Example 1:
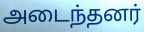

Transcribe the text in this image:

அடைந்தனர்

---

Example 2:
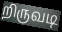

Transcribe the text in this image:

றிருவடி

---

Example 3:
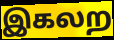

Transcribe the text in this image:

இகலற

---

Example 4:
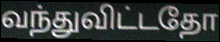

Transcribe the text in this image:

வந்துவிட்டதோ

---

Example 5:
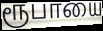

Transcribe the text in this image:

ரூபாயை